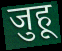
जुहू